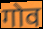
गोव